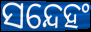
ସନ୍ଦେହଂ